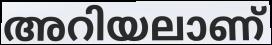
അറിയലാണ്